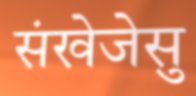
संखेजेसु